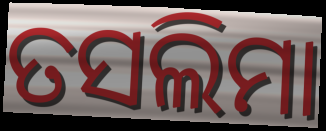
ତସଲିମା